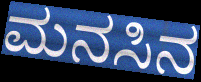
ಮನಸಿನ